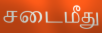
சடைமீது